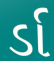
ર્ડા